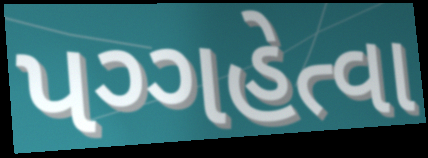
પગ્ગહેત્વા